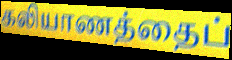
கலியாணத்தைப்